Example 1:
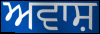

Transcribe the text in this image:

ਅਵਾਸ਼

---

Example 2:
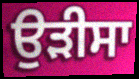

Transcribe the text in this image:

ਉੜੀਸਾ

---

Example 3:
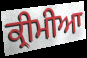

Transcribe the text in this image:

ਕ੍ਰੀਮੀਆ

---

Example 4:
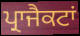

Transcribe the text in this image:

ਪ੍ਰਾਜੈਕਟਾਂ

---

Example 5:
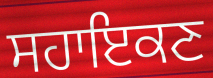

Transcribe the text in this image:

ਸਹਾਇਕਣ